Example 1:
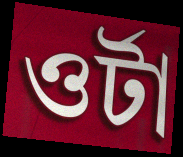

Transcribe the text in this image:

ওর্টা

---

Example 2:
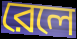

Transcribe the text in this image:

রেলে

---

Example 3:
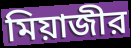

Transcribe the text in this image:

মিয়াজীর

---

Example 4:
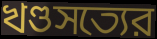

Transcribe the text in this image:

খণ্ডসত্যের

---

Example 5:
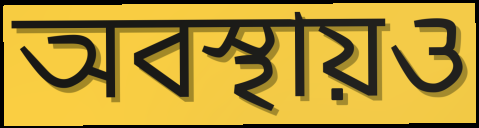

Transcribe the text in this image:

অবস্থায়ও